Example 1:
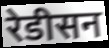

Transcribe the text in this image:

रेडीसन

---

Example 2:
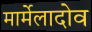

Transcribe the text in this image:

मार्मेलादोव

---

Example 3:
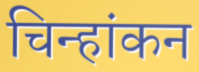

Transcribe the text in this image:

चिन्हांकन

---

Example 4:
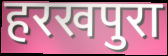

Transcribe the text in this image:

हरखपुरा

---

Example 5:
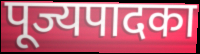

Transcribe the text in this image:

पूज्यपादका